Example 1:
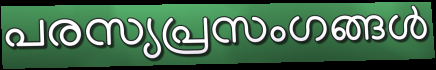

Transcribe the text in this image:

പരസ്യപ്രസംഗങ്ങൾ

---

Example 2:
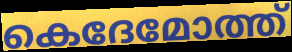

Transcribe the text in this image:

കെദേമോത്ത്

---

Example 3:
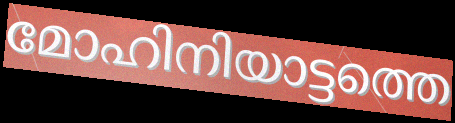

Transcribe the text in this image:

മോഹിനിയാട്ടത്തെ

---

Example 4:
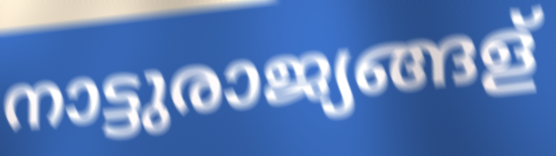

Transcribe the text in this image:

നാട്ടുരാജ്യങ്ങള്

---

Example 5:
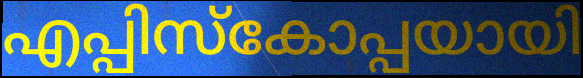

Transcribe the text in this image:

എപ്പിസ്കോപ്പയായി